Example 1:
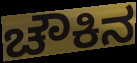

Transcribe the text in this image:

ಚೌಕಿನ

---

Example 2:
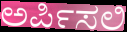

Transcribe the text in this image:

ಅರ್ಪಿಸಲಿ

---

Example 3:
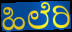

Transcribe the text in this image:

ಹಿಲೆರಿ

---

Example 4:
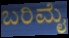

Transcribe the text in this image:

ಬರಿಮೈ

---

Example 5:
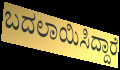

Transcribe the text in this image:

ಬದಲಾಯಿಸಿದ್ದಾರೆ